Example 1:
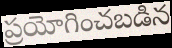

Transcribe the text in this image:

ప్రయోగించబడిన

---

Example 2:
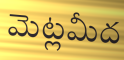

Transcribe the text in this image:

మెట్లమీద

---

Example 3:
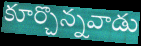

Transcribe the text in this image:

కూర్చొన్నవాడు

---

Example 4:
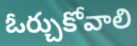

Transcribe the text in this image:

ఓర్చుకోవాలి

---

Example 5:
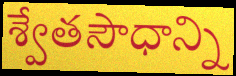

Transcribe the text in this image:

శ్వేతసౌధాన్ని